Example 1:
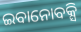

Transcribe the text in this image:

ଇବାନୋବକ୍ସି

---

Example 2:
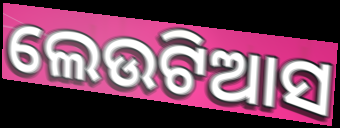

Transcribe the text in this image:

ଲେଉଟିଆସ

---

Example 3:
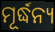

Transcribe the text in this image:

ମୂର୍ଦ୍ଧନ୍ୟ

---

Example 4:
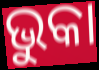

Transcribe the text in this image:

ଭୁକା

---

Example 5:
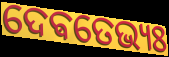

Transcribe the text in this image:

ଦେଵତେଭ୍ୟଃ